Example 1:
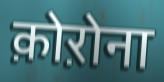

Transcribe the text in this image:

क़ोऱोना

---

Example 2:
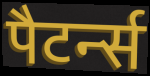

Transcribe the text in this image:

पैटर्न्स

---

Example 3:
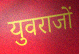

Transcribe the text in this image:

युवराजों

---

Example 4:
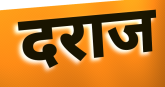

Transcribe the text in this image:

दराज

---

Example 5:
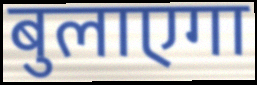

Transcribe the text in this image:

बुलाएगा